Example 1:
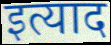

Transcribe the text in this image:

इत्याद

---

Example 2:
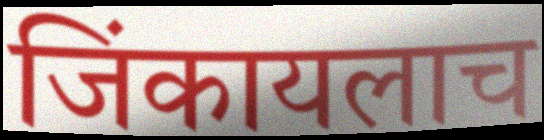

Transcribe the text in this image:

जिंकायलाच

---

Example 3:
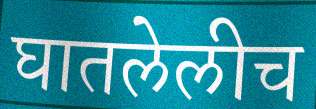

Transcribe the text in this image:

घातलेलीच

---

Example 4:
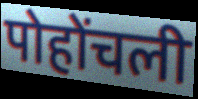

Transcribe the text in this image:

पोहोंचली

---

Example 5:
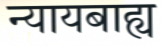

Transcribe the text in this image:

न्यायबाह्य